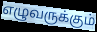
எழுவருக்கும்